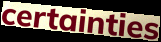
certainties